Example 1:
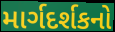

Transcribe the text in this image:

માર્ગદર્શકનો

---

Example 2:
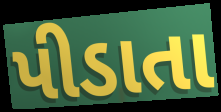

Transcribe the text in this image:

પીડાતા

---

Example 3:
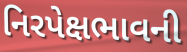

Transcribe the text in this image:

નિરપેક્ષભાવની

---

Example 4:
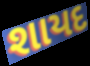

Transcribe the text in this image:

શાયદ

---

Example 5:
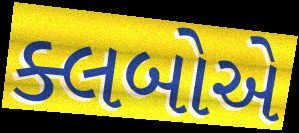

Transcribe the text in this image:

ક્લબોએ